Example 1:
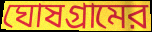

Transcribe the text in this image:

ঘোষগ্রামের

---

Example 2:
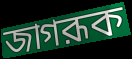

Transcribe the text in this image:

জাগরূক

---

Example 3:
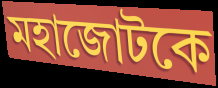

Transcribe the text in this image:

মহাজোটকে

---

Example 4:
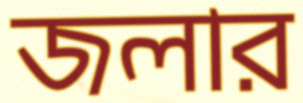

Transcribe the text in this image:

জলার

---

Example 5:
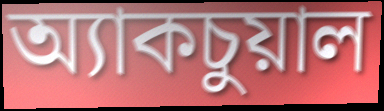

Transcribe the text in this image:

অ্যাকচুয়াল